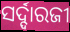
ସର୍ଦ୍ଦାରଜୀ